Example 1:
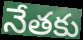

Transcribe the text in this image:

నేతకు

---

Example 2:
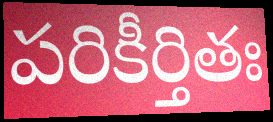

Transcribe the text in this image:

పరికీర్తితః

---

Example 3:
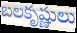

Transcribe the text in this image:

బలకృష్ణులు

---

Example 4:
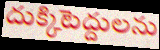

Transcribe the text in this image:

దుక్కిటెద్దులను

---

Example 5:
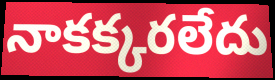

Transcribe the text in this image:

నాకక్కరలేదు